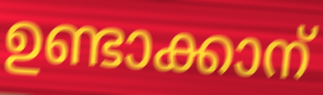
ഉണ്ടാക്കാന്